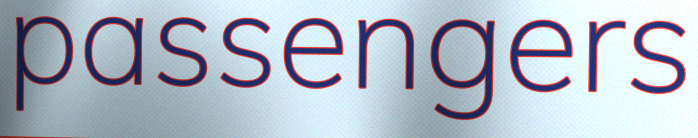
passengers